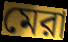
মেরা